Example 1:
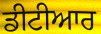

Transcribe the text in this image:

ਡੀਟੀਆਰ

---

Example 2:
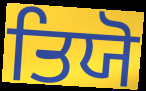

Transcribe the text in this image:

ਤਿਯੋ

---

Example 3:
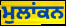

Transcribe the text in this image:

ਮੁਲਾਂਕਨ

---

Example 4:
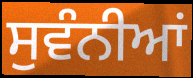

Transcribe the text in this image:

ਸੁਵੰਨੀਆਂ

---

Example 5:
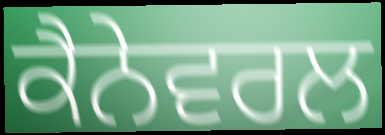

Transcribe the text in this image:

ਕੈਨੇਵਰਲ